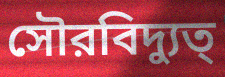
সৌরবিদ্যুত্